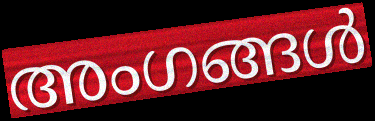
അംഗങ്ങൾ